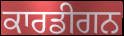
ਕਾਰਡੀਗਨ